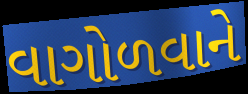
વાગોળવાને